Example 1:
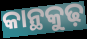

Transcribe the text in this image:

କାନ୍ଥକୁଢ଼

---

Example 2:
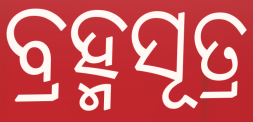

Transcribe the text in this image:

ବ୍ରହ୍ମସୂତ୍ର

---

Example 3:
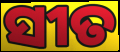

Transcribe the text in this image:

ସୀତ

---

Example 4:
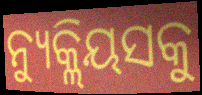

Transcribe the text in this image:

ନ୍ୟୁକ୍ଲିୟସକୁ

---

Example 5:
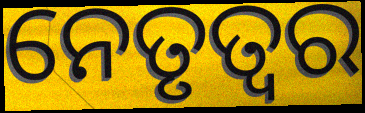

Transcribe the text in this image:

ନେତୃତ୍ୱର